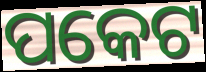
ପକେଟ